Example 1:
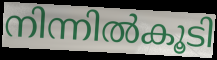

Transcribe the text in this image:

നിന്നിൽകൂടി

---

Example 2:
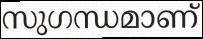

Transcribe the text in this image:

സുഗന്ധമാണ്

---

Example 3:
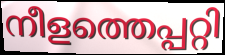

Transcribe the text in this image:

നീളത്തെപ്പറ്റി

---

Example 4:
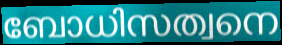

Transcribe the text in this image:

ബോധിസത്വനെ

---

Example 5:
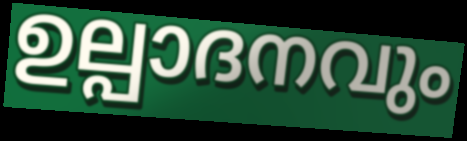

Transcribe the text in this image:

ഉല്പാദനവും